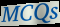
MCQs